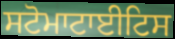
ਸਟੋਮਾਟਾਈਟਿਸ